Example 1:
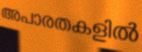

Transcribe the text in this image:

അപാരതകളിൽ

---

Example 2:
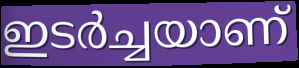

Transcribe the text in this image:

ഇടർച്ചയാണ്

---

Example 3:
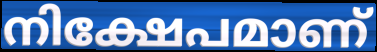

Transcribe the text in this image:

നിക്ഷേപമാണ്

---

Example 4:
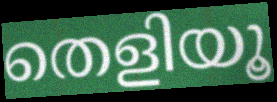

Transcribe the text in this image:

തെളിയൂ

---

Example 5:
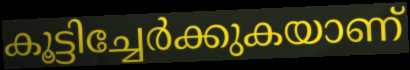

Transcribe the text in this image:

കൂട്ടിച്ചേർക്കുകയാണ്